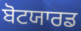
ਬੋਟਯਾਰਡ